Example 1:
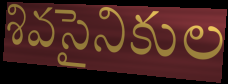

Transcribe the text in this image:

శివసైనికుల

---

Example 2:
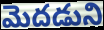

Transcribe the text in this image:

మెదడుని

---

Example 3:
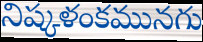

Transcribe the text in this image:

నిష్కళంకమునగు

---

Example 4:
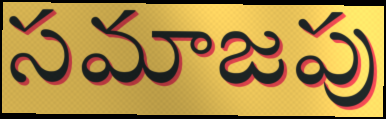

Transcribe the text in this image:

సమాజపు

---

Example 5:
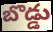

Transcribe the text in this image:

బొడ్డు